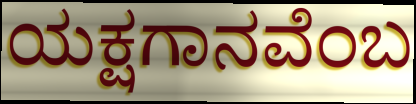
ಯಕ್ಷಗಾನವೆಂಬ